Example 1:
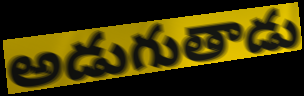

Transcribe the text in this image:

అడుగుతాడు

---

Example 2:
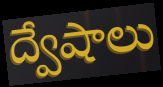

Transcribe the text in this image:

ద్వేషాలు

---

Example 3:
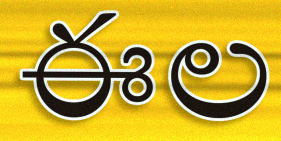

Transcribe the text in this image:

ఈల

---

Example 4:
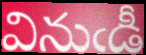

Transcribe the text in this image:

వినుఁడీ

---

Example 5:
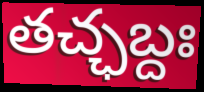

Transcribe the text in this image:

తచ్ఛబ్దః